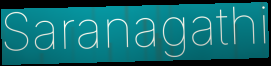
Saranagathi